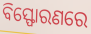
ବିସ୍ଫୋରଣରେ